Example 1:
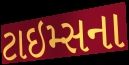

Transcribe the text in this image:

ટાઇમ્સના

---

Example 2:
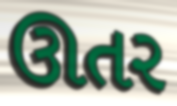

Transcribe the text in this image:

ઊતર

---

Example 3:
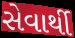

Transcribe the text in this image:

સેવાર્થી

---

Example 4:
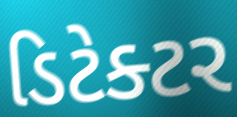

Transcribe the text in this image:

ડિટેક્ટર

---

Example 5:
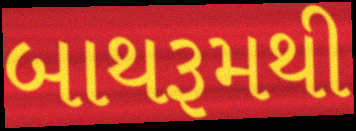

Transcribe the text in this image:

બાથરૂમથી